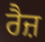
ਰੈਜ਼